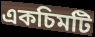
একচিমটি